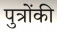
पुत्रोंकी